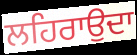
ਲਹਿਰਾਉਦਾ